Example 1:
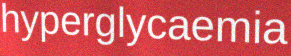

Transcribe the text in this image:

hyperglycaemia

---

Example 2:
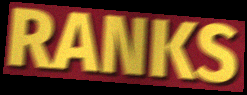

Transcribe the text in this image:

RANKS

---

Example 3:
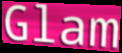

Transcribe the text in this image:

Glam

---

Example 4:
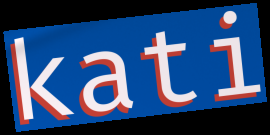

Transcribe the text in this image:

kati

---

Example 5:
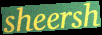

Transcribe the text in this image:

sheersh